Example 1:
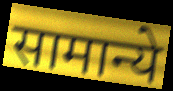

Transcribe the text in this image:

सामान्ये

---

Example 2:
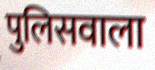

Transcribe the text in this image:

पुलिसवाला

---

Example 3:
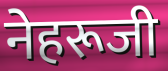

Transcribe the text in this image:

नेहरूजी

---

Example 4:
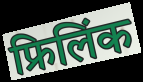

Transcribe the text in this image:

फ्रिलिंक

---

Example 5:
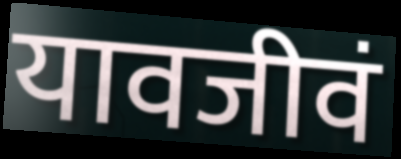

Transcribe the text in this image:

यावजीवं